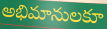
అభిమానులకూ